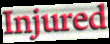
Injured